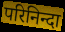
परिनिन्दा